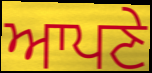
ਆਪਣੇ